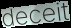
deceit